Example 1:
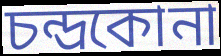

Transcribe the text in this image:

চন্দ্রকোনা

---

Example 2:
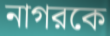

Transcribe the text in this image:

নাগরকে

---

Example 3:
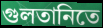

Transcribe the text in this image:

গুলতানিতে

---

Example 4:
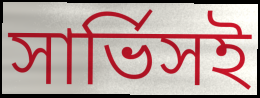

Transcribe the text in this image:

সার্ভিসই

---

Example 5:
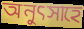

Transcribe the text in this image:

অনুৎসাহে